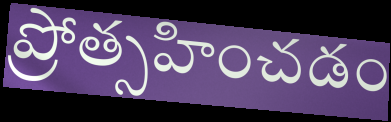
ప్రోత్సహించడం